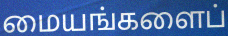
மையங்களைப்